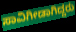
ಸಾವಿಗೀಡಾಗಿದ್ದರು